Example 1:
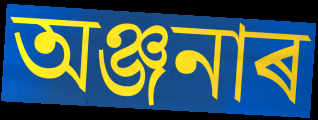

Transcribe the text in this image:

অঞ্জনাৰ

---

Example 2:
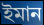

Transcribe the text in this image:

ইমান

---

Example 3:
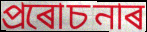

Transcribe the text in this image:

প্ৰৰোচনাৰ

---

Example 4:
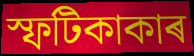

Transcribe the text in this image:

স্ফটিকাকাৰ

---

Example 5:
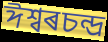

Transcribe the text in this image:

ঈশ্বৰচন্দ্ৰ